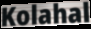
Kolahal